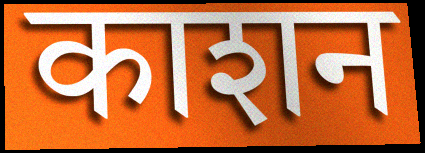
काशन